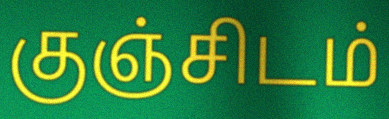
குஞ்சிடம்